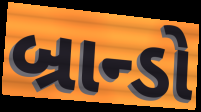
બ્રાન્ડો